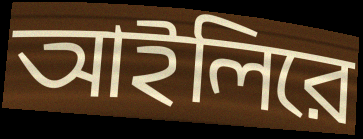
আইলিরে